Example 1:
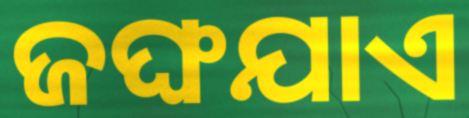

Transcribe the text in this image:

ଜଙ୍ଘଯାଏ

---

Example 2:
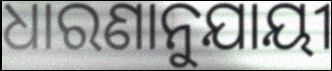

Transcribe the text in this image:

ଧାରଣାନୁଯାୟୀ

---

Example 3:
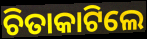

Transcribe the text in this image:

ଚିତାକାଟିଲେ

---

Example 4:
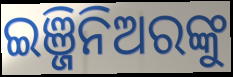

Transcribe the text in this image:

ଇଞ୍ଜିନିଅରଙ୍କୁ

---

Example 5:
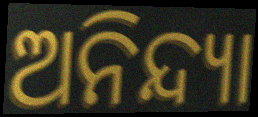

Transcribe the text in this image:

ଅନିନ୍ଦ୍ୟା